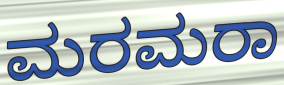
ಮರಮರಾ